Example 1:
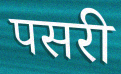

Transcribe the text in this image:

पसरी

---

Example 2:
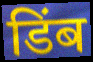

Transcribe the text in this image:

डिंब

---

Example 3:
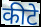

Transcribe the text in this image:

कीटे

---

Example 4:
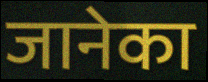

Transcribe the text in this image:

जानेका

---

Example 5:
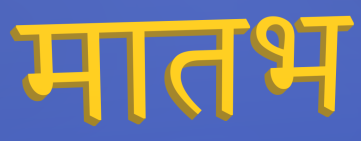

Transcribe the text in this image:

मातभ